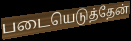
படையெடுத்தேன்